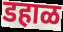
डहाळ